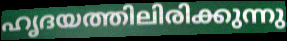
ഹൃദയത്തിലിരിക്കുന്നു